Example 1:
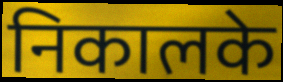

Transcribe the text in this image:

निकालके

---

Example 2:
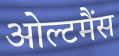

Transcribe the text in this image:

ओल्टमैंस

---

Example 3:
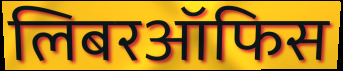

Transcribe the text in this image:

लिबरऑफिस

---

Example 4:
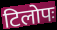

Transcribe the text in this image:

टिलोपः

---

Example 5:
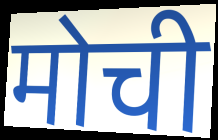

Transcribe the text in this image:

मोची